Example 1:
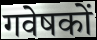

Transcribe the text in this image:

गवेषकों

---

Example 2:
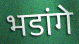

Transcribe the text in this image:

भडांगे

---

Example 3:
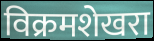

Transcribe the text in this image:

विक्रमशेखरा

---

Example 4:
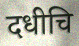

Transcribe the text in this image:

दधीचि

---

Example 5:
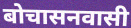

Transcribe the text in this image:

बोचासनवासी